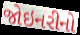
જોઇનરીનો